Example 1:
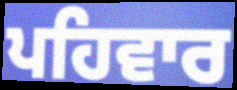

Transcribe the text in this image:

ਪਹਿਵਾਰ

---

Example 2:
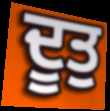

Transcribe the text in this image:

ਦੂਤੁ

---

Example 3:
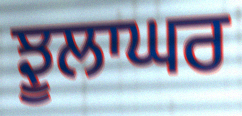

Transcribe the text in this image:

ਝੂਲਾਘਰ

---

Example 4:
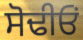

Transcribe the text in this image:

ਸੋਢੀਓਂ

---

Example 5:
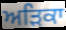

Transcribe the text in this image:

ਅੜਿਕਾ